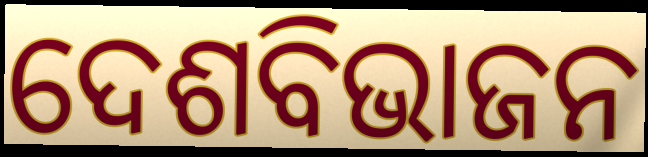
ଦେଶବିଭାଜନ